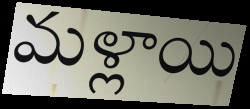
మళ్లాయి